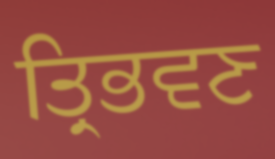
ਤ੍ਰਿਭਵਣ